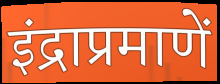
इंद्राप्रमाणें